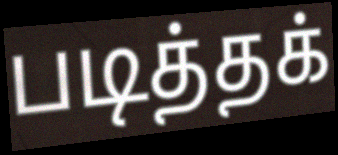
படித்தக்